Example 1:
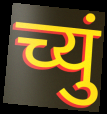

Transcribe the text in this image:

च्युं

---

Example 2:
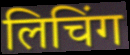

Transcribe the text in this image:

लिचिंग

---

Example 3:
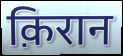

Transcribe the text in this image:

क़िरान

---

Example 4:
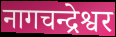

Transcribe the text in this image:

नागचन्द्रेश्वर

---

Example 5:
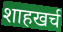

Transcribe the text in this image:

शाहखर्च